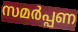
സമർപ്പണ